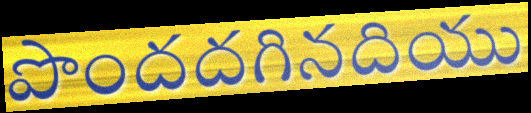
పొందదగినదియు